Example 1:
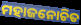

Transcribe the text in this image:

ମହାଜନୋଚିତ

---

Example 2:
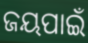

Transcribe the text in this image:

ଜୟପାଇଁ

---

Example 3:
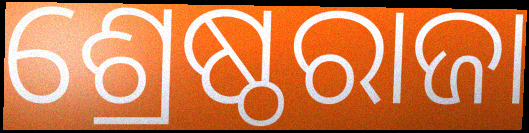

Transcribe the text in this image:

ଶ୍ରେଷ୍ଠରାଜା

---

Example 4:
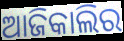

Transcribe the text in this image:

ଆଜିକାଲିର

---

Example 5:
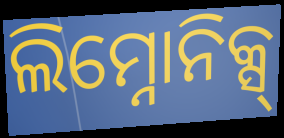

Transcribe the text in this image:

ଲିମ୍ନୋନିକ୍ସ୍